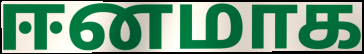
ஈனமாக